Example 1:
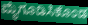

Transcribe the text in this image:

ಮೈಗೂಡಿಸಿಕೊಂಡ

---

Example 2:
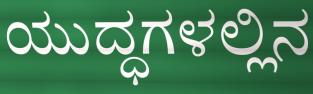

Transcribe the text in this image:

ಯುದ್ಧಗಳಲ್ಲಿನ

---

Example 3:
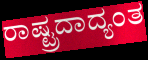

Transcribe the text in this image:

ರಾಷ್ಟ್ರದಾದ್ಯಂತ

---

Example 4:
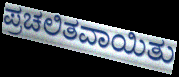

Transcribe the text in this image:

ಪ್ರಚಲಿತವಾಯಿತು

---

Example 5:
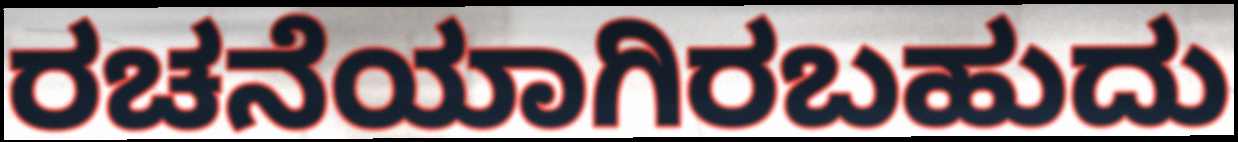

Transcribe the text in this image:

ರಚನೆಯಾಗಿರಬಹುದು